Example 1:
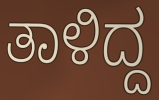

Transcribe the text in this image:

ತಾಳಿದ್ದ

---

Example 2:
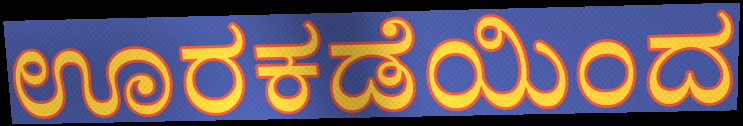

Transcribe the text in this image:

ಊರಕಡೆಯಿಂದ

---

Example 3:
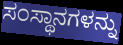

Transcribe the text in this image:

ಸಂಸ್ಥಾನಗಳನ್ನು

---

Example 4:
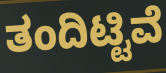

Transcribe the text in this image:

ತಂದಿಟ್ಟಿವೆ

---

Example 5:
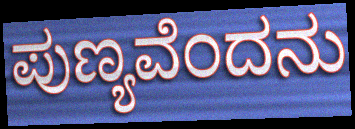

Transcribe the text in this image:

ಪುಣ್ಯವೆಂದನು